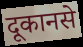
दूकानसे